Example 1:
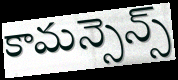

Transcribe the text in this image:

కామన్సెన్స్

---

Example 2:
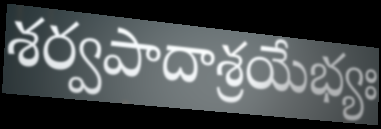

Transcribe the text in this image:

శర్వపాదాశ్రయేభ్యః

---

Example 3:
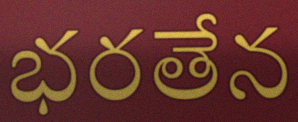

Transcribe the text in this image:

భరతేన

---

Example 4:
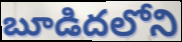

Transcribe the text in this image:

బూడిదలోని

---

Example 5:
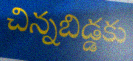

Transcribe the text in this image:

చిన్నబిడ్డకు